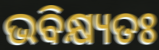
ଭବିକ୍ଷ୍ୟତଃ